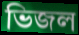
ভিজল